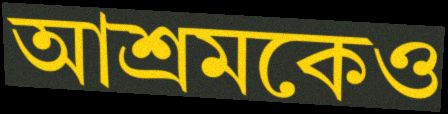
আশ্রমকেও